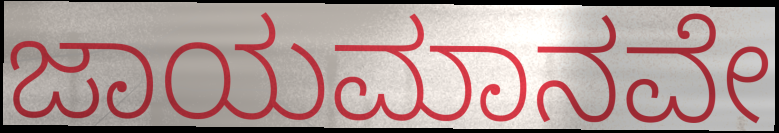
ಜಾಯಮಾನವೇ